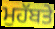
ਮੁਹੱਬਤੇ